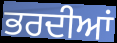
ਭਰਦੀਆਂ